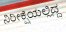
ನಿರೀಕ್ಷೆಯಲ್ಲಿದ್ದ